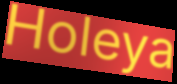
Holeya